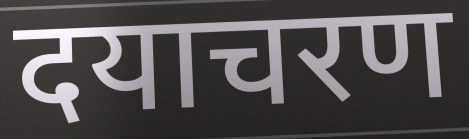
दयाचरण